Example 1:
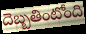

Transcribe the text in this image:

దెబ్బతింటోంది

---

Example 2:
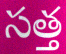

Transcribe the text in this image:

సత్త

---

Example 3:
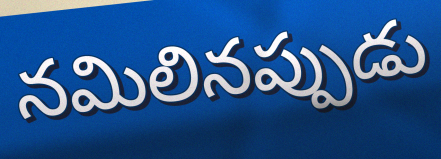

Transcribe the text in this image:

నమిలినప్పుడు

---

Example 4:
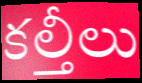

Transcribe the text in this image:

కల్తీలు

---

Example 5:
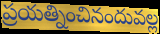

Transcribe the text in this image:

ప్రయత్నించినందువల్ల